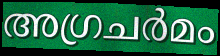
അഗ്രചർമം